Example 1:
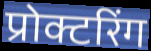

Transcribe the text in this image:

प्रोक्टरिंग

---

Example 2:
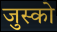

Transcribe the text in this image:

जुस्को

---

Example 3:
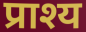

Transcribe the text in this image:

प्राश्य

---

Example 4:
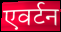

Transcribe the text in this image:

एवर्टन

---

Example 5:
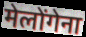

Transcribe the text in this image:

मेलोंगेना